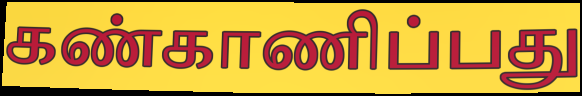
கண்காணிப்பது